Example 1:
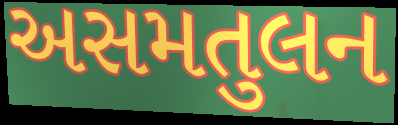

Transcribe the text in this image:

અસમતુલન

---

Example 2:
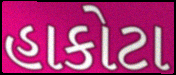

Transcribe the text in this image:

હાકોટા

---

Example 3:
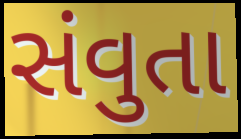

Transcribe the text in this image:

સંવુતા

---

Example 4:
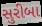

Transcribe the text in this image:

સુરીબા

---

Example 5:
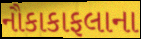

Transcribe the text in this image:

નૌકાકાફલાના